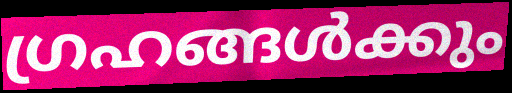
ഗ്രഹങ്ങൾക്കും